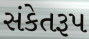
સંકેતરૂપ